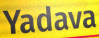
Yadava